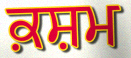
ਕ਼ਸ਼ਮ